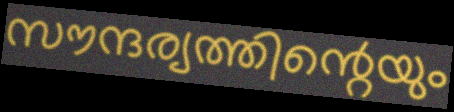
സൗന്ദര്യത്തിന്റെയും